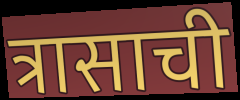
त्रासाची